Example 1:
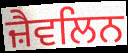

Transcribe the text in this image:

ਜ਼ੈਵਲਿਨ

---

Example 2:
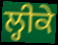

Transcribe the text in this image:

ਲ੍ਹੀਕੇ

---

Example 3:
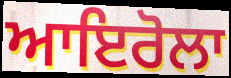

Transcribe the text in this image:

ਆਇਰੋਲਾ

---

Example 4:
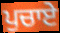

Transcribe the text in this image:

ਪੁਚਾਏ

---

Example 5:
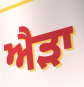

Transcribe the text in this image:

ਐੜਾ